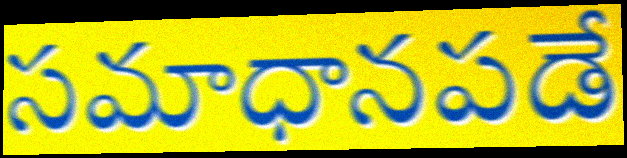
సమాధానపడే